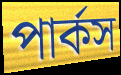
পার্কস